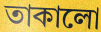
তাকালো